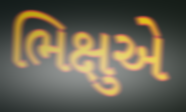
ભિક્ષુએ